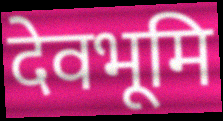
देवभूमि